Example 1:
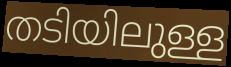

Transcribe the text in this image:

തടിയിലുള്ള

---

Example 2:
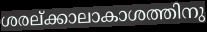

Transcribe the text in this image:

ശരല്ക്കാലാകാശത്തിനു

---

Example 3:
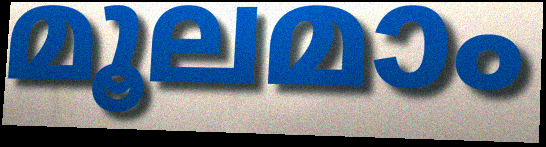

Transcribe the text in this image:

മൂലമാം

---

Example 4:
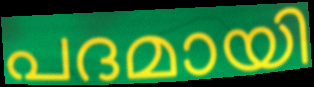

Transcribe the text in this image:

പദമായി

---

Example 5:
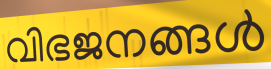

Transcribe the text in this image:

വിഭജനങ്ങൾ